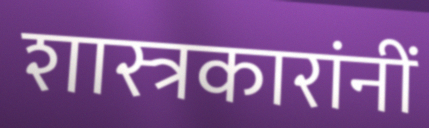
शास्त्रकारांनीं